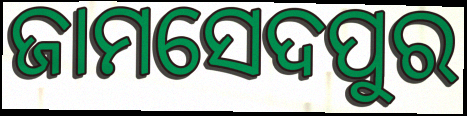
ଜାମସେଦପୁର